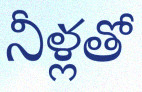
నీళ్లతో